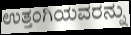
ಉತ್ತಂಗಿಯವರನ್ನು